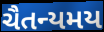
ચૈતન્યમય